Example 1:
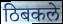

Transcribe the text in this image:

ठिबकले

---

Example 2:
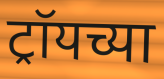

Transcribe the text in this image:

ट्रॉयच्या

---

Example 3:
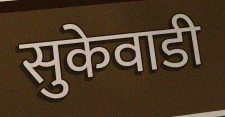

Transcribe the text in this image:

सुकेवाडी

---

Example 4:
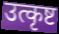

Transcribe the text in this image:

उत्कृष्ट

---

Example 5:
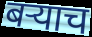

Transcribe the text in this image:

बर्‍याच